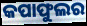
କପାଫୁଲର